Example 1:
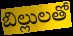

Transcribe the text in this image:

బిల్లులతో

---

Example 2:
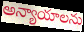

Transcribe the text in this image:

అన్యాయాలను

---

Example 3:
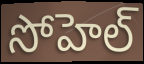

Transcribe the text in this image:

సోహెల్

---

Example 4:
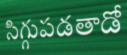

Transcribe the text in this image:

సిగ్గుపడతాడో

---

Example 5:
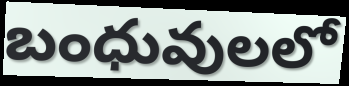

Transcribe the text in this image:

బంధువులలో